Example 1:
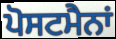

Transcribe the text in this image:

ਪੋਸਟਮੈਨਾਂ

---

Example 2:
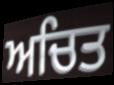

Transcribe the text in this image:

ਅਚਿਤ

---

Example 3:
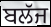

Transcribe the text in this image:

ਬਲੱਜ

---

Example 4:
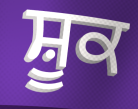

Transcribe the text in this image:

ਸ਼ੂਕ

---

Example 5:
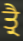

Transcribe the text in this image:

ਤ੍ਰੈ